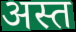
अस्त